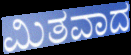
ಮಿತವಾದ